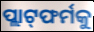
ପ୍ଲାଟ୍‌ଫର୍ମକୁ